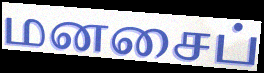
மனசைப்